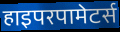
हाइपरपामेटर्स